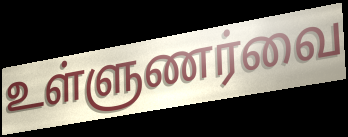
உள்ளுணர்வை